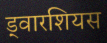
ड्वारशियस